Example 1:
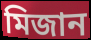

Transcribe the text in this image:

মিজান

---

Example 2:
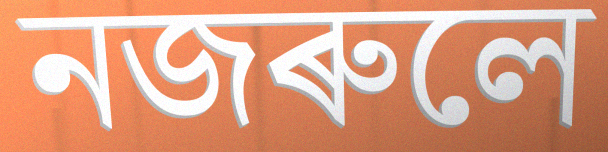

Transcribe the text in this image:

নজৰুলে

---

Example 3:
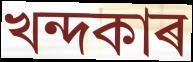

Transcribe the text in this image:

খন্দকাৰ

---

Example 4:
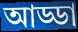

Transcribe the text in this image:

আড্ডা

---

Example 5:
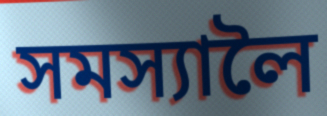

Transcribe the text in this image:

সমস্যালৈ